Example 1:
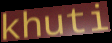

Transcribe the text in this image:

khuti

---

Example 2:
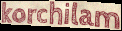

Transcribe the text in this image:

korchilam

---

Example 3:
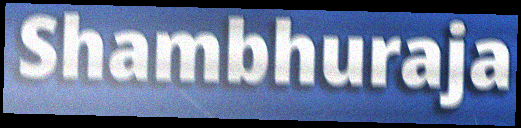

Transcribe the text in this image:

Shambhuraja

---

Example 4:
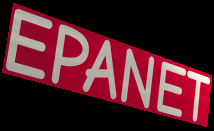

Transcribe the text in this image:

EPANET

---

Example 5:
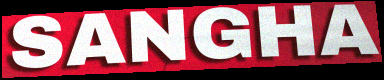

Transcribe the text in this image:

SANGHA